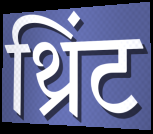
थ्रिंट